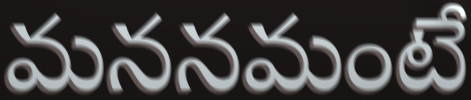
మననమంటే